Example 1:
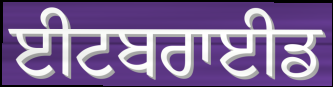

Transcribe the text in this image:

ਈਟਬਰਾਈਡ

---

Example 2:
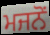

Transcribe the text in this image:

ਮਜਨੋਂ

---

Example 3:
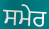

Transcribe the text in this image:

ਸਮੇਰ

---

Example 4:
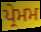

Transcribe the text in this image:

ਪ੍ਰੇਮਮ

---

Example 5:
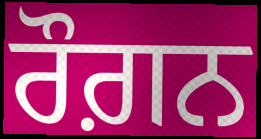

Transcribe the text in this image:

ਰੌਗ਼ਨ